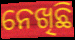
ନେଖିଛି